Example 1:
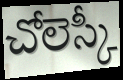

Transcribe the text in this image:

చోలెస్కీ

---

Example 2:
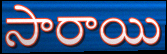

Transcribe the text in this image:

సారాయి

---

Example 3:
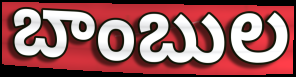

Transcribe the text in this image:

బాంబుల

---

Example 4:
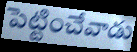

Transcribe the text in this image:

పెట్టించేవాడు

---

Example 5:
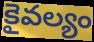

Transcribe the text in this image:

కైవల్యం